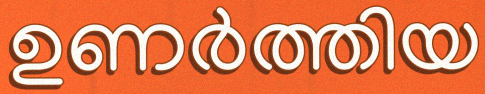
ഉണർത്തിയ